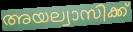
അയല്വാസിക്ക്